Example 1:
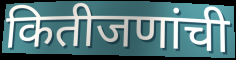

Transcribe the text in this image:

कितीजणांची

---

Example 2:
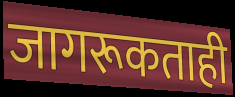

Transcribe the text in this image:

जागरूकताही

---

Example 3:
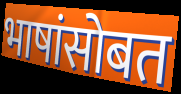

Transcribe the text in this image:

भाषांसोबत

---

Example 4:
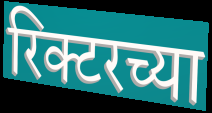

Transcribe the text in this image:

रिक्टरच्या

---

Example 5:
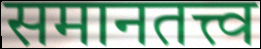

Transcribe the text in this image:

समानतत्त्व